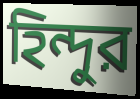
হিন্দুর